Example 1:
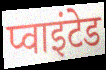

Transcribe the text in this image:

प्वाइंटेड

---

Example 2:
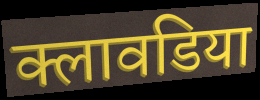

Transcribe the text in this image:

क्लावडिया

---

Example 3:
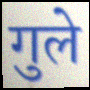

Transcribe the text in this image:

गुले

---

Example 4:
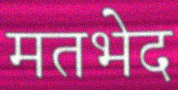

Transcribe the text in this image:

मतभेद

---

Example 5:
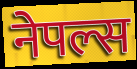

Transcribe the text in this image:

नेपल्स